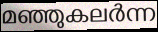
മഞ്ഞുകലർന്ന